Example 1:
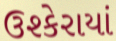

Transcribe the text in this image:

ઉશ્કેરાયાં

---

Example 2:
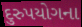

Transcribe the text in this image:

દુરુપયોગના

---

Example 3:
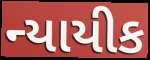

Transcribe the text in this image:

ન્યાયીક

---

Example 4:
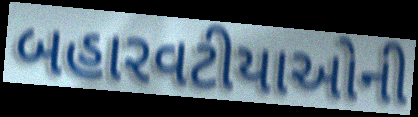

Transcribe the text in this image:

બહારવટીયાઓની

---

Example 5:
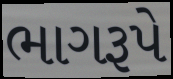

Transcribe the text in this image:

ભાગરૂપે